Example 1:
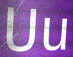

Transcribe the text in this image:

Uu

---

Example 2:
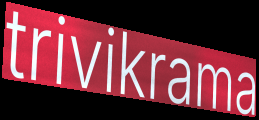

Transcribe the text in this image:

trivikrama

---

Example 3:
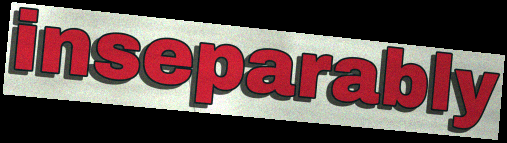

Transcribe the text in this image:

inseparably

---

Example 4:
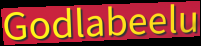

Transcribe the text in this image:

Godlabeelu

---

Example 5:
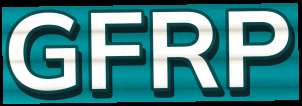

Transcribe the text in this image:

GFRP